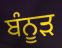
ਬੰਨੂੜ